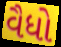
વૈધો